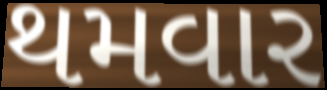
થમવાર